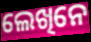
ଲେଖିନେ